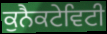
ਕੁਨੈਕਟੇਵਿਟੀ